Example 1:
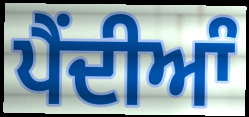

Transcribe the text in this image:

ਪੈੰਦੀਆੰ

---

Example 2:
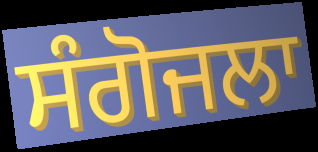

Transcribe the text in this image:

ਸੰਗੋਜਲਾ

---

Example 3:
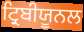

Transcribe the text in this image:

ਟ੍ਰਿਬੀਯੂਨਲ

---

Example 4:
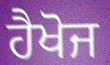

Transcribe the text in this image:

ਹੈਖੋਜ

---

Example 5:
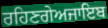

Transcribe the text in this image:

ਰਹਿਣਗੇਅਜਾਇਬ